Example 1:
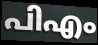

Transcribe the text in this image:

പിഎം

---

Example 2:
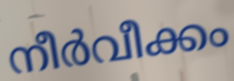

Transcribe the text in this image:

നീർവീക്കം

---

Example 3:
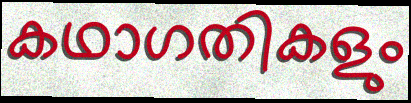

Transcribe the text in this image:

കഥാഗതികളും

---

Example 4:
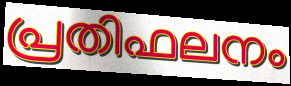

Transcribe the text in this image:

പ്രതിഫലനം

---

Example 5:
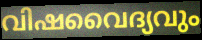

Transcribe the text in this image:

വിഷവൈദ്യവും